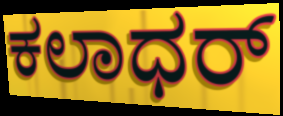
ಕಲಾಧರ್